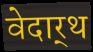
वेदार्थ